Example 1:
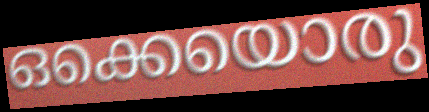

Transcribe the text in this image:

ഒക്കെയൊരു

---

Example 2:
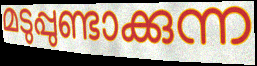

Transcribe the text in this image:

മടുപ്പുണ്ടാക്കുന്ന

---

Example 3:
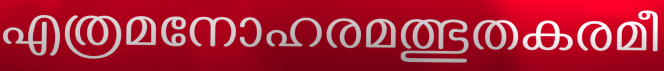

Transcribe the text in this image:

എത്രമനോഹരമത്ഭുതകരമീ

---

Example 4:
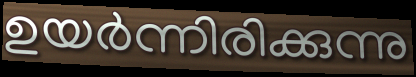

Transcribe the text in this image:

ഉയർന്നിരിക്കുന്നു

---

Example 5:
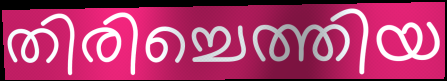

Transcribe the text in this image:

തിരിച്ചെത്തിയ